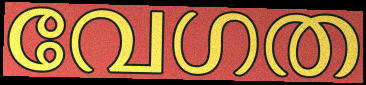
വേഗത